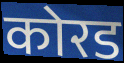
कोरड